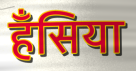
हँसिया